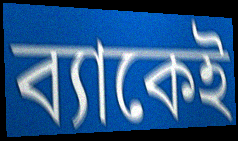
ব্যাকেই